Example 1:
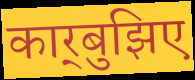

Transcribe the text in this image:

कार्बुझिए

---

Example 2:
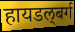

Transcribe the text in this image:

हायडल्‌बर्ग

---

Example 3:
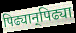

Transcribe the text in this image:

पिढ्यान्‌पिढ्या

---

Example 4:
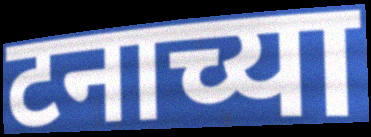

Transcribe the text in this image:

टनाच्या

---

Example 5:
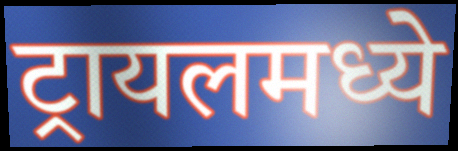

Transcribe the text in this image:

ट्रायलमध्ये